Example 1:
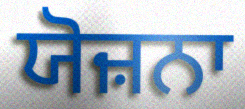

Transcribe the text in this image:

ਯੋਜ਼ਨਾ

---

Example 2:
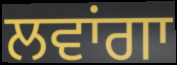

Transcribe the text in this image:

ਲਵਾਂਗਾ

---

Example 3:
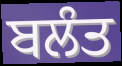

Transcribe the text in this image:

ਬਲੰਤ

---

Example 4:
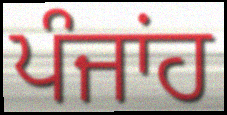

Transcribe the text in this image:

ਪੰਜਾਂਹ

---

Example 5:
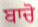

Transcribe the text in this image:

ਬਾਚੋ